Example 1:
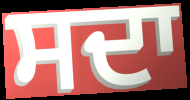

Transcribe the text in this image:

ਸਦਾ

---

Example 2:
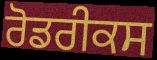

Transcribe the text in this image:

ਰੋਡਰੀਕਸ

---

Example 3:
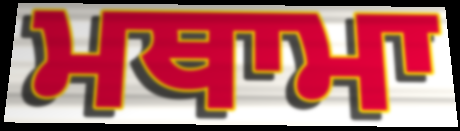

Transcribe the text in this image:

ਮਥਾਮਾ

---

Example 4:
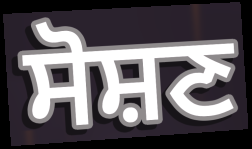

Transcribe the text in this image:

ਸੋਸ਼ਣ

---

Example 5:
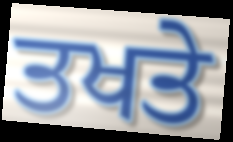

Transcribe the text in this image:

ਤਖਤੇ